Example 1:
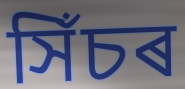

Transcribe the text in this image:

সিঁচৰ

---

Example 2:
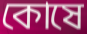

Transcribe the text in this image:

কোষে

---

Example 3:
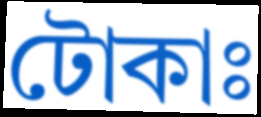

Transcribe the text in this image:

টোকাঃ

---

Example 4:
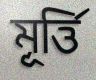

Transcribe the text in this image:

মূৰ্ত্তি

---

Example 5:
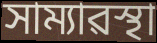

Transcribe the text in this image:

সাম্যাৱস্থা